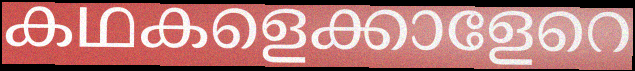
കഥകളെക്കാളേറെ